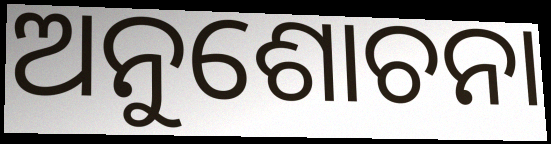
ଅନୁଶୋଚନା